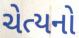
ચેત્યનો